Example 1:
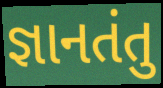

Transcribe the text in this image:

જ્ઞાનતંતુ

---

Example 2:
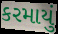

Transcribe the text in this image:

કરમાયું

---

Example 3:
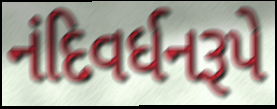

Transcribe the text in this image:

નંદિવર્ધનરૂપે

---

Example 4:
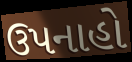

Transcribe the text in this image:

ઉપનાહો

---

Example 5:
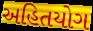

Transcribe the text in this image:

અહિતયોગ